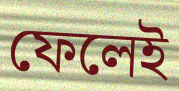
ফেলেই